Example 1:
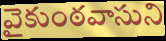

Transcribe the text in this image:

వైకుంఠవాసుని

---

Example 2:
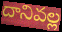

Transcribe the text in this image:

దానివల్ల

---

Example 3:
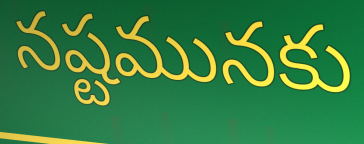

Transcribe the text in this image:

నష్టమునకు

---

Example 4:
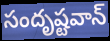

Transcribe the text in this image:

సందృష్టవాన్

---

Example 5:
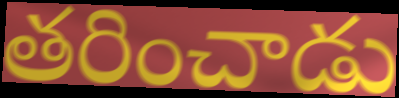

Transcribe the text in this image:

తరించాడు